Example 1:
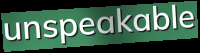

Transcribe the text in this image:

unspeakable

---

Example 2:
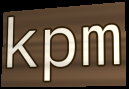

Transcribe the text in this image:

kpm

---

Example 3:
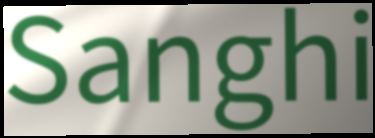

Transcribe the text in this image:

Sanghi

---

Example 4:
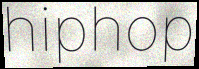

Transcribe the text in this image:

hiphop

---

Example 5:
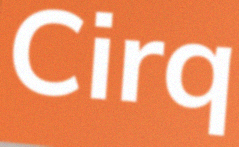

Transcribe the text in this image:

Cirq